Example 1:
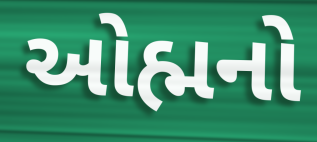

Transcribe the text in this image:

ઓહ્મનો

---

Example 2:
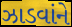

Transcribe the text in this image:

ઝાડવાંને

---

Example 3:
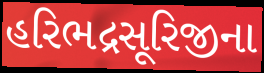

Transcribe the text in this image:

હરિભદ્રસૂરિજીના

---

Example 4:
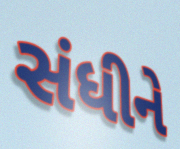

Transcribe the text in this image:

સંધીને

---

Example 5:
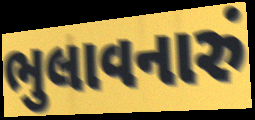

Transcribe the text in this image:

ભુલાવનારું